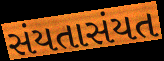
સંયતાસંયત